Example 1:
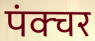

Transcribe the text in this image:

पंक्‍चर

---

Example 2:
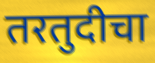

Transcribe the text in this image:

तरतुदीचा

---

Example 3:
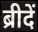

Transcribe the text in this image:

ब्रीदें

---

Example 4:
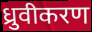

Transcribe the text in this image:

ध्रुवीकरण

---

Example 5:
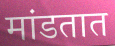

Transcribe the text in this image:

मांडतात